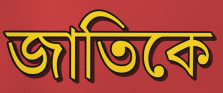
জাতিকে